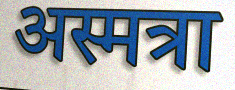
अस्मत्रा